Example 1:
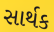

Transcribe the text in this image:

સાર્થક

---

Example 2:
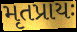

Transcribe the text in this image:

મૃતપ્રાયઃ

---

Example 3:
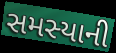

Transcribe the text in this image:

સમસ્યાની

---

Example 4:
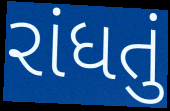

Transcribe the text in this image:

રાંધતું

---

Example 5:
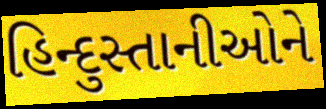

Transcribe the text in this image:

હિન્દુસ્તાનીઓને